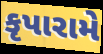
કૃપારામે